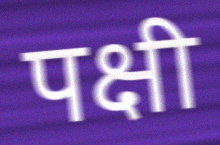
पक्षी